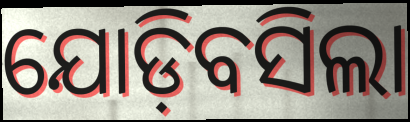
ଯୋଡ଼ିବସିଲା